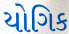
યોગિક